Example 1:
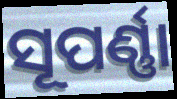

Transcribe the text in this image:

ସୂପର୍ଣ୍ଣା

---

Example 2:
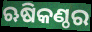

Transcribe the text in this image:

ଋଷିକଣ୍ଠର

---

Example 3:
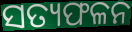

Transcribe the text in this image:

ସତ୍ୟଫଳନ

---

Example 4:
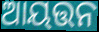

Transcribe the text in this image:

ଆୟତ୍ତନ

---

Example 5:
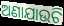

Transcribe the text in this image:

ଅଣାଯାଉଚି